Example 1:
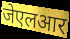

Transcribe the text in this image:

जेएलआर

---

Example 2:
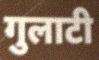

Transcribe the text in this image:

गुलाटी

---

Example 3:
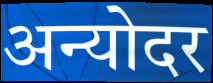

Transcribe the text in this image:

अन्योदर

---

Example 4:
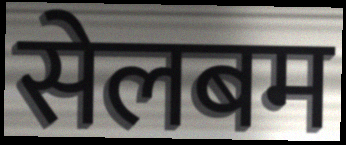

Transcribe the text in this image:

सेलबम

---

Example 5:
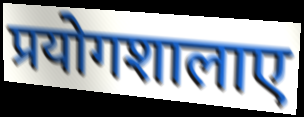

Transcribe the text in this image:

प्रयोगशालाए